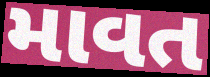
માવત